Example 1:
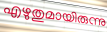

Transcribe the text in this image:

എഴുതുമായിരുന്നു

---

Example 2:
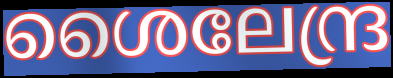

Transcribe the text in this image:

ശൈലേന്ദ്ര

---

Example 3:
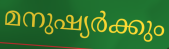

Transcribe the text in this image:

മനുഷ്യർക്കും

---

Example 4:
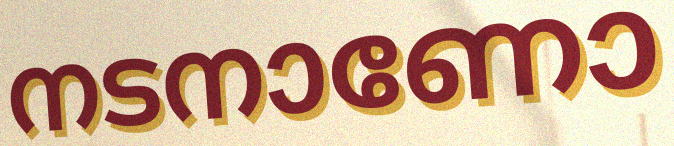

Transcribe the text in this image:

നടനാണോ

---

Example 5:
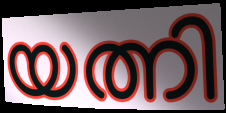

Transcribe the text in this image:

യത്നി